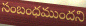
సంబంధముందని